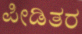
ಪೀಡಿತರ